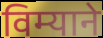
विम्याने